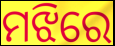
ମଝିରେ